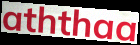
aththaa